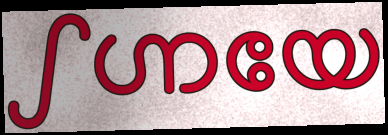
ഽഗ്നയേ